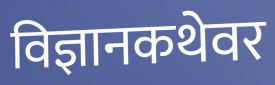
विज्ञानकथेवर